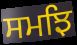
ਸਮਝਿ